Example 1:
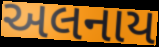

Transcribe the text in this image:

અલનાય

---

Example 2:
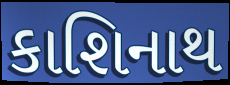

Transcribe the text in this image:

કાશિનાથ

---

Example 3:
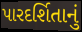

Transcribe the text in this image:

પારદર્શિતાનું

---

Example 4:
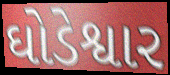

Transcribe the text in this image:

ઘોડેશ્વાર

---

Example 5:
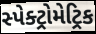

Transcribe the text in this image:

સ્પેક્ટ્રોમેટ્રિક